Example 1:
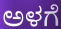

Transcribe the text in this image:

ಅಳಗೆ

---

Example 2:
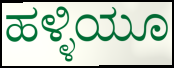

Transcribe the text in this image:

ಹಳ್ಳಿಯೂ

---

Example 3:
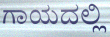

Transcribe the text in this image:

ಗಾಯದಲ್ಲಿ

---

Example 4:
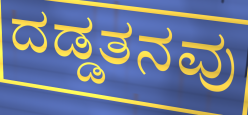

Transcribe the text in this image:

ದಡ್ಡತನವು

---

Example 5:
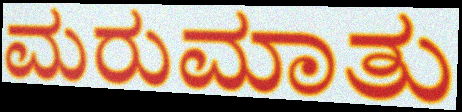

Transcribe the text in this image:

ಮರುಮಾತು